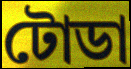
টোডা